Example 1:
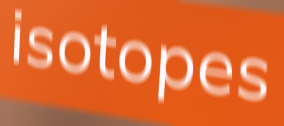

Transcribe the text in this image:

isotopes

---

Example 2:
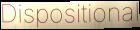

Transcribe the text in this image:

Dispositional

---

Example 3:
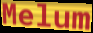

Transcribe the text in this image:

Melum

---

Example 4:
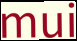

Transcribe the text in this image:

mui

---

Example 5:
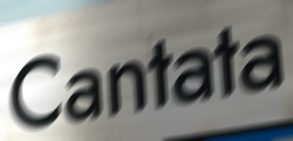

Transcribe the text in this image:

Cantata